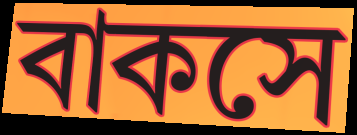
বাকসে